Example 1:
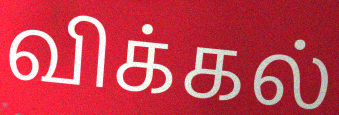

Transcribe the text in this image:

விக்கல்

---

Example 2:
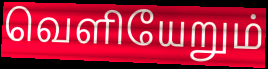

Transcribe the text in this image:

வெளியேறும்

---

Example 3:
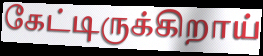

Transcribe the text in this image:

கேட்டிருக்கிறாய்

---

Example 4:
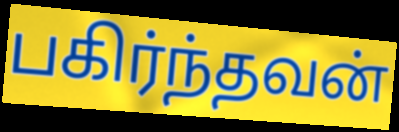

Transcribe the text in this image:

பகிர்ந்தவன்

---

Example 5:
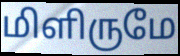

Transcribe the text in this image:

மிளிருமே